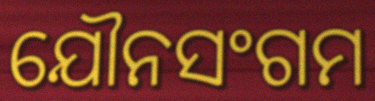
ଯୌନସଂଗମ